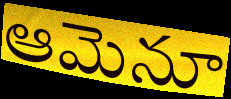
ఆమెనూ